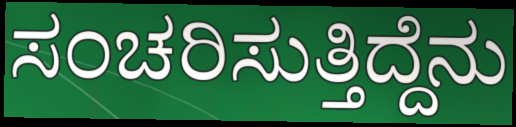
ಸಂಚರಿಸುತ್ತಿದ್ದೆನು